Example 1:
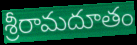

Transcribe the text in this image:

శ్రీరామదూతం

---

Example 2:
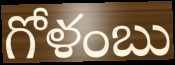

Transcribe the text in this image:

గోళంబు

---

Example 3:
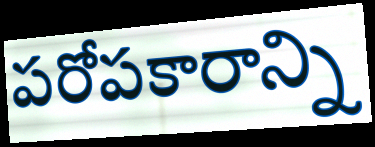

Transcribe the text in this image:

పరోపకారాన్ని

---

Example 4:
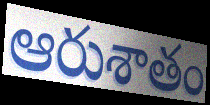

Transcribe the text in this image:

ఆరుశాతం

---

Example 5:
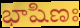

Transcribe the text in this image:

భాషిణః